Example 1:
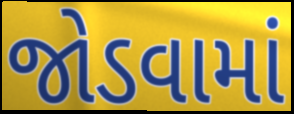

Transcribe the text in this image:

જોડવામાં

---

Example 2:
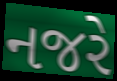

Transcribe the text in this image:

નજરે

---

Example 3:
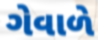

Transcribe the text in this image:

ગેવાળે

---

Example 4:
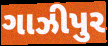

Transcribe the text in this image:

ગાઝીપુર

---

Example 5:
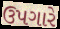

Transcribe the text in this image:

ઉપગારે